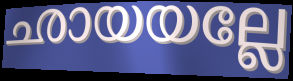
ഛായയല്ലേ